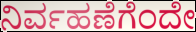
ನಿರ್ವಹಣೆಗೆಂದೇ